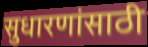
सुधारणांसाठी